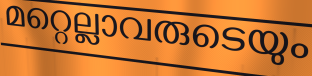
മറ്റെല്ലാവരുടെയും